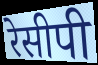
रेसीपी